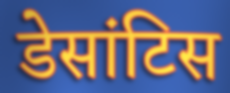
डेसांटिस